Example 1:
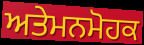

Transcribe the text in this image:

ਅਤੇਮਨਮੋਹਕ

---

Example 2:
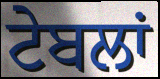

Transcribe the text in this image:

ਟੇਬਲਾਂ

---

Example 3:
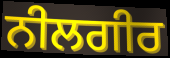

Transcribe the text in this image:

ਨੀਲਗੀਰ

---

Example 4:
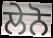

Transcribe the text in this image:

ਲੇਨੋ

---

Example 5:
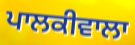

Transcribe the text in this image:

ਪਾਲਕੀਵਾਲਾ